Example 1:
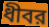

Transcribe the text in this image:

ধীবর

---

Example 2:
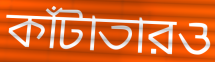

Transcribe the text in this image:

কাঁটাতারও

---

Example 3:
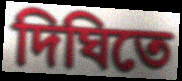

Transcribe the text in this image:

দিঘিতে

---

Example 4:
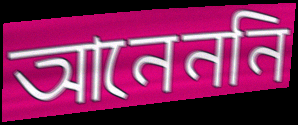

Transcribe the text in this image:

আনেননি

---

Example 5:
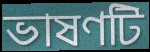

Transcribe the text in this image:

ভাষণটি